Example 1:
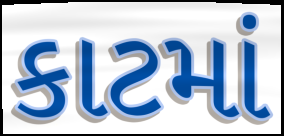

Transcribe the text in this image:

કાટમાં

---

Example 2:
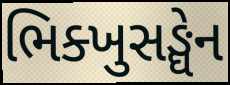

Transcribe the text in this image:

ભિક્ખુસઙ્ઘેન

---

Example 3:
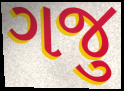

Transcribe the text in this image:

ગજુ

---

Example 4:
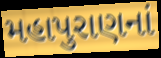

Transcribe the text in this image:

મહાપુરાણનાં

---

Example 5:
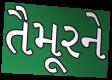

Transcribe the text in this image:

તૈમૂરને